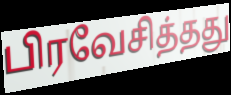
பிரவேசித்தது